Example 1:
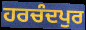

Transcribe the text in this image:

ਹਰਚੰਦਪੁਰ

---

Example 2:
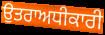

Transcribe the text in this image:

ਉਤਰਾਅਧੀਕਾਰੀ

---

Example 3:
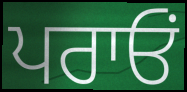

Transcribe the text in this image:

ਪਰਾਓਂ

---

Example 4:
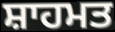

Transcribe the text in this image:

ਸ਼ਾਹਮਤ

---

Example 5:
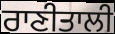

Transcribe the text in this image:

ਰਾਣੀਤਾਲੀ